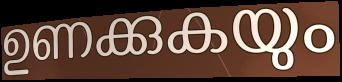
ഉണക്കുകയും